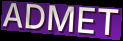
ADMET